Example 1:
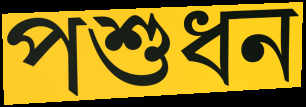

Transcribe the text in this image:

পশুধন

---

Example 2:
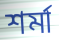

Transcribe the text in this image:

শৰ্মা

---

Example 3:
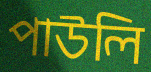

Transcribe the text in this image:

পাউলি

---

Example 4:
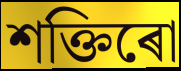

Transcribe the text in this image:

শক্তিৰো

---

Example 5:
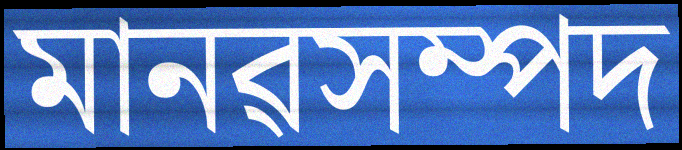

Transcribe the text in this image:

মানৱসম্পদ